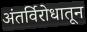
अंतर्विरोधातून